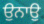
ਉਨਾਉ